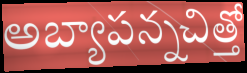
అబ్యాపన్నచిత్తో